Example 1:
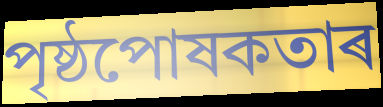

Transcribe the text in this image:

পৃষ্ঠপোষকতাৰ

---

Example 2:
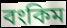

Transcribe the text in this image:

বংকিম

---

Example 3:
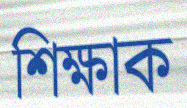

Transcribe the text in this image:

শিক্ষাক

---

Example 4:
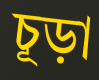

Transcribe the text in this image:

চূড়া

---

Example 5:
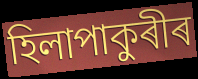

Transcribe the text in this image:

হিলাপাকুৰীৰ